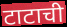
टाटाची